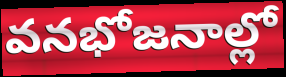
వనభోజనాల్లో